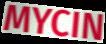
MYCIN